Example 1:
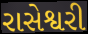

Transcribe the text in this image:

રાસેશ્વરી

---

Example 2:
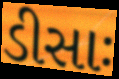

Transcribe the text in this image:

ડીસાઃ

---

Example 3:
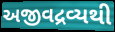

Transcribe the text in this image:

અજીવદ્રવ્યથી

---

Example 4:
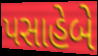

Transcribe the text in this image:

પસાહેબે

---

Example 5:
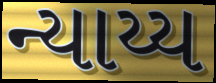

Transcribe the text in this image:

ન્યાય્ય